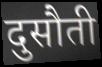
दुसौती